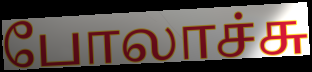
போலாச்சு